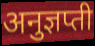
अनुज्ञप्ती